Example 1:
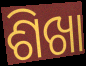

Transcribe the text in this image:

ଶିଖା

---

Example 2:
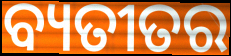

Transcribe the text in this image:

ବ୍ୟତୀତର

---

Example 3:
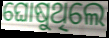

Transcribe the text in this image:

ଘୋଷୁଥିଲେ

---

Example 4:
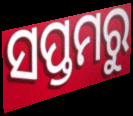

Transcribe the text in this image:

ସପ୍ତମରୁ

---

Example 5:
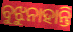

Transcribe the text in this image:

ବୁଝୁନାହାନ୍ତି